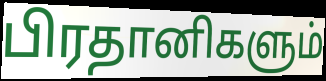
பிரதானிகளும்